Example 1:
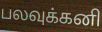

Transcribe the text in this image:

பலவுக்கனி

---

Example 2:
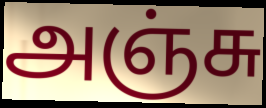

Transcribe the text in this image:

அஞ்சு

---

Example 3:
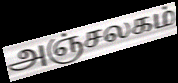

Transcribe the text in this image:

அஞ்சலகம்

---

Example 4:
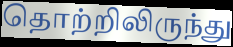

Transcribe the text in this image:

தொற்றிலிருந்து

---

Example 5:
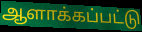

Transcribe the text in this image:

ஆளாக்கப்பட்டு